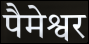
पैमेश्वर